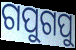
ଗପୁଗପୁ